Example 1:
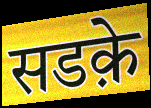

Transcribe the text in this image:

सडक़े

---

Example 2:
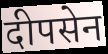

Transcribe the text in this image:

दीपसेन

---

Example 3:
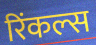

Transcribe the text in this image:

रिंकल्स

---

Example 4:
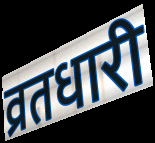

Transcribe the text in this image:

व्रतधारी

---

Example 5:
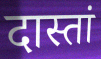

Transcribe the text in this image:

दास्तां